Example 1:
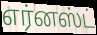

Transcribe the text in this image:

எர்னஸ்ட்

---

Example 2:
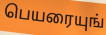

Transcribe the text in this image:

பெயரையுங்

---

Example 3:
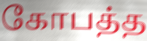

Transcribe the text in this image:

கோபத்த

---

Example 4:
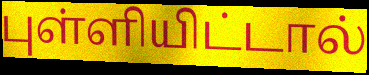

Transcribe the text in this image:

புள்ளியிட்டால்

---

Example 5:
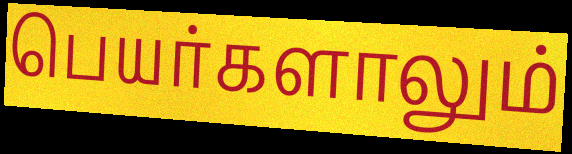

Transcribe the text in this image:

பெயர்களாலும்